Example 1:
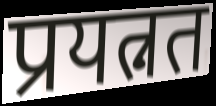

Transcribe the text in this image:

प्रयत्नत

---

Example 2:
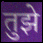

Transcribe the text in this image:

तुझे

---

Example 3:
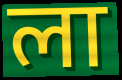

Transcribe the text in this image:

ला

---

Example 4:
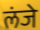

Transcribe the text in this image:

लंजे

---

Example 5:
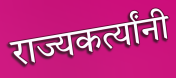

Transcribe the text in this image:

राज्यकर्त्यांनी